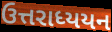
ઉત્તરાધ્યયન